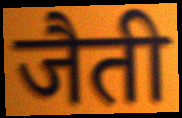
जैती